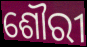
ଶୌରୀ